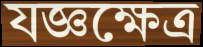
যজ্ঞক্ষেত্র